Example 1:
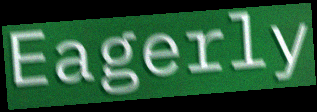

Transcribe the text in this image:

Eagerly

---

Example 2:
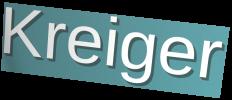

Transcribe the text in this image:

Kreiger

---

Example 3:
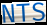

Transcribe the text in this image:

NTS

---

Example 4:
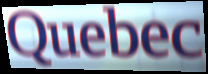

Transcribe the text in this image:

Quebec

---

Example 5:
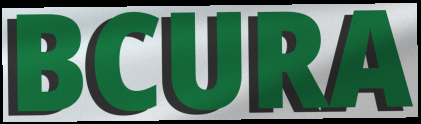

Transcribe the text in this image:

BCURA